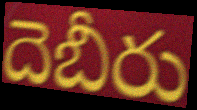
దెబీరు